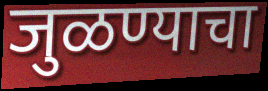
जुळण्याचा